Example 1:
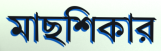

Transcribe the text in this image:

মাছশিকার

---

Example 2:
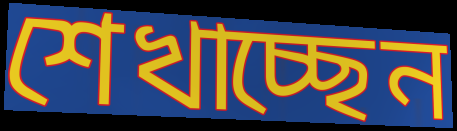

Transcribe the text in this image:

শেখাচ্ছেন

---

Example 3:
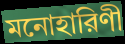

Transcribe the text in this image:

মনোহারিণী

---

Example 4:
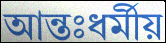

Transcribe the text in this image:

আন্তঃধর্মীয়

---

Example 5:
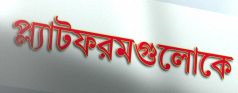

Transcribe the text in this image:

প্ল্যাটফরমগুলোকে